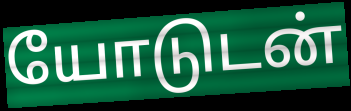
யோடுடன்